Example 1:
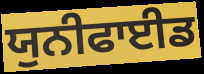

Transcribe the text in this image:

ਯੁਨੀਫਾਈਡ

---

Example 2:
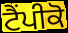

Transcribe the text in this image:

ਟੈਂਪੀਕੋ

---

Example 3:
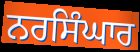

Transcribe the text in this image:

ਨਰਸਿੰਘਾਰ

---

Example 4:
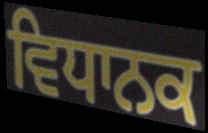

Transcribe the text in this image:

ਵਿਧਾਨਕ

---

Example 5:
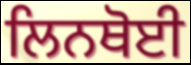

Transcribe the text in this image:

ਲਿਨਥੋਈ